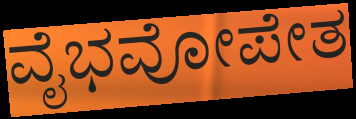
ವೈಭವೋಪೇತ